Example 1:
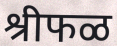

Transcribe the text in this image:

श्रीफळ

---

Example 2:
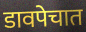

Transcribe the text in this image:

डावपेचात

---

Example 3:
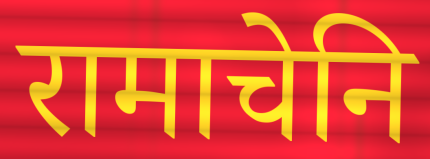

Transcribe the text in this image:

रामाचेनि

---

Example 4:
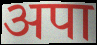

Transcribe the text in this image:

अपा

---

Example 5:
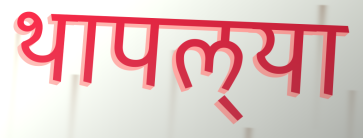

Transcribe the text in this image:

थापल्या